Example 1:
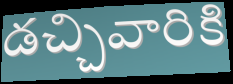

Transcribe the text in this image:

డచ్చివారికి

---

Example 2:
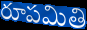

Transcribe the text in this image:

రూపమితి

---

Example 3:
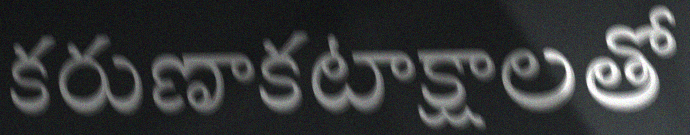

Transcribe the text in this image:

కరుణాకటాక్షాలతో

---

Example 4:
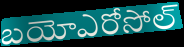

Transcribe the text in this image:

బయోఎరోసోల్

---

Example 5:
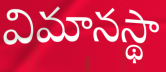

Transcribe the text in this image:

విమానస్థా